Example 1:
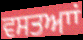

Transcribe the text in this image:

ਵਸਤਆਾਂ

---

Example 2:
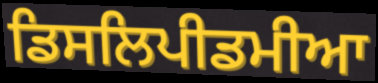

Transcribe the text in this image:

ਡਿਸਲਿਪੀਡਮੀਆ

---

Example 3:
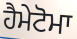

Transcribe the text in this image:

ਹੈਮੇਟੋਮਾ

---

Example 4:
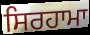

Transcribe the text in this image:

ਸਿਰਹਾਮਾ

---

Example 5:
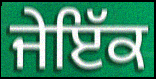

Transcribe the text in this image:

ਜੇਇੱਕ